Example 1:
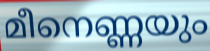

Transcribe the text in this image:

മീനെണ്ണയും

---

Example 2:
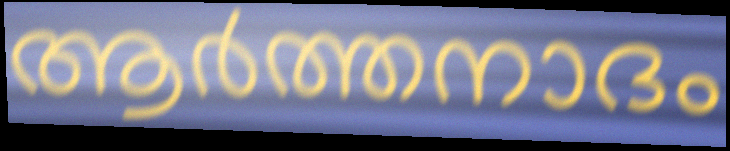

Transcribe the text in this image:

ആർത്തനാദം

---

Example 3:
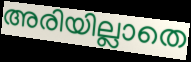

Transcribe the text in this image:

അരിയില്ലാതെ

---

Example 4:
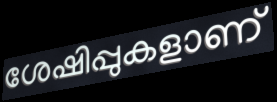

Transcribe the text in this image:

ശേഷിപ്പുകളാണ്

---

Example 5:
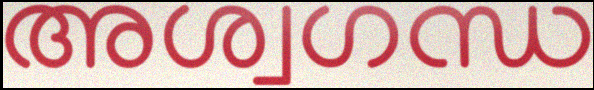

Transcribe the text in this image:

അശ്വഗന്ധ